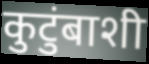
कुटुंबाशी